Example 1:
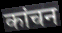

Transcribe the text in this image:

कांचन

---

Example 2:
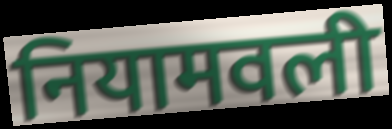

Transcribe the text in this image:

नियामवली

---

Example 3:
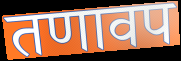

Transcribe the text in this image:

तणावप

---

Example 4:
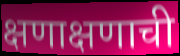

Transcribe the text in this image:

क्षणाक्षणाची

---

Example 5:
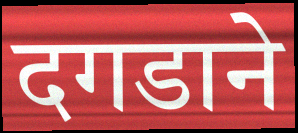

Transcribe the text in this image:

दगडाने